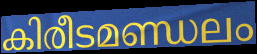
കിരീടമണ്ഡലം